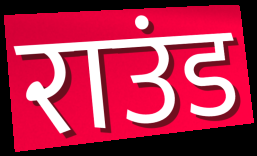
राउंड